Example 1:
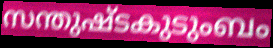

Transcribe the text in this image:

സന്തുഷ്ടകുടുംബം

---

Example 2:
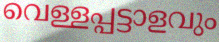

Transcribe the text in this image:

വെള്ളപ്പട്ടാളവും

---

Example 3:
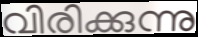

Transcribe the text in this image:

വിരിക്കുന്നു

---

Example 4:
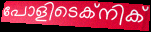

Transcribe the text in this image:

പോളിടെക്നിക്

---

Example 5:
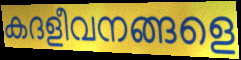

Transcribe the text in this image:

കദളീവനങ്ങളെ